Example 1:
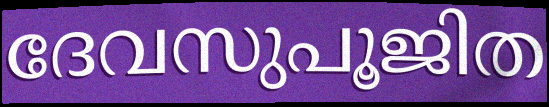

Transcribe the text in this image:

ദേവസുപൂജിത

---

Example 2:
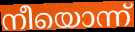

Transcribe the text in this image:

നീയൊന്ന്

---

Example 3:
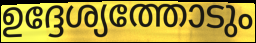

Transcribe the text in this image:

ഉദ്ദേശ്യത്തോടും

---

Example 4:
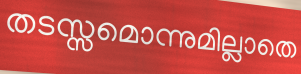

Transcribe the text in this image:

തടസ്സമൊന്നുമില്ലാതെ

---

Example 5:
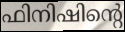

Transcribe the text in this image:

ഫിനിഷിന്റെ